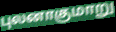
புலனாகுமாறு